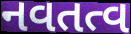
નવતત્વ